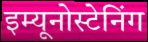
इम्यूनोस्टेनिंग